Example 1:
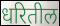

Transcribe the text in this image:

धरितील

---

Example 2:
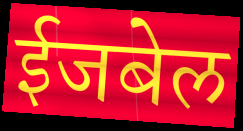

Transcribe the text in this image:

ईजबेल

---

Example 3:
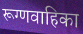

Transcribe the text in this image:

रूग्णवाहिका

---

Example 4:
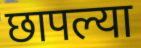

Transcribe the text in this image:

छापल्या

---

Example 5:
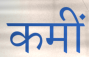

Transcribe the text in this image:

कमीं